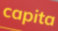
capita